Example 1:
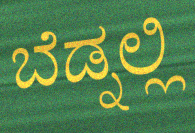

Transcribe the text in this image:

ಬೆಡ್ನಲ್ಲಿ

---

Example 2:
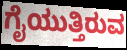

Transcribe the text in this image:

ಗೈಯುತ್ತಿರುವ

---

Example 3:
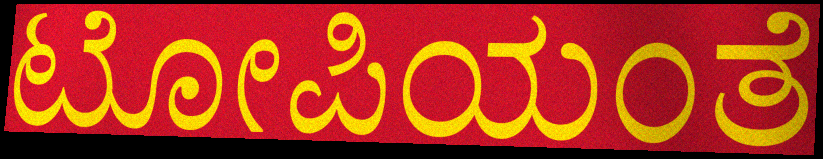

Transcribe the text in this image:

ಟೋಪಿಯಂತೆ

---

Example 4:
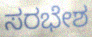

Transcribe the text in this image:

ಸರಭೇಶ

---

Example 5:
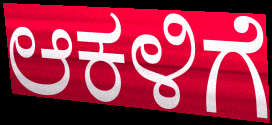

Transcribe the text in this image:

ಆಕಳಿಗೆ